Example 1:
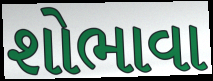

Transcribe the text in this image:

શોભાવા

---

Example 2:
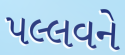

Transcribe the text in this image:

પલ્લવને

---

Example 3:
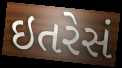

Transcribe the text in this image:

ઇતરેસં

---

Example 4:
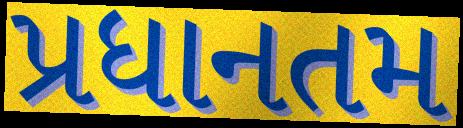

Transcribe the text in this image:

પ્રધાનતમ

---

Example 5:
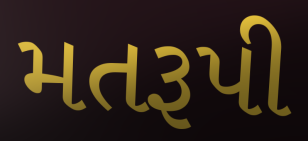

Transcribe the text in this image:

મતરૂપી